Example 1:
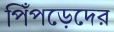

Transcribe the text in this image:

পিঁপড়েদের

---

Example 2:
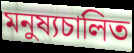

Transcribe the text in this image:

মনুষ্যচালিত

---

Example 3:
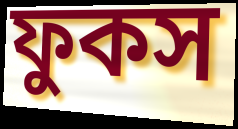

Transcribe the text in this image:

ফুকস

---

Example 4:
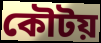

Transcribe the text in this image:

কৌটয়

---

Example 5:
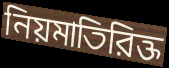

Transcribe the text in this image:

নিয়মাতিরিক্ত